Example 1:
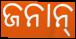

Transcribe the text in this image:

ଜନାନ୍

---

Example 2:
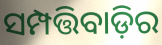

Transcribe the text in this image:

ସମ୍ପତ୍ତିବାଡ଼ିର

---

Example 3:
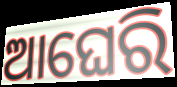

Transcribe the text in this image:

ଆଘେରି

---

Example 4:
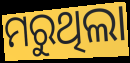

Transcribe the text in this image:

ମରୁଥିଲା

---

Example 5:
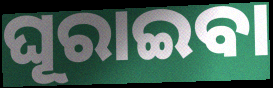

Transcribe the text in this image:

ଘୂରାଇବା